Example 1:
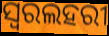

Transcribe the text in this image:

ସ୍ୱରଲହରୀ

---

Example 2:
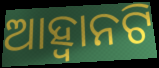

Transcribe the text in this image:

ଆହ୍ଵାନଟି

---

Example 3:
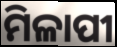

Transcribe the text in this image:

ମିଳାପୀ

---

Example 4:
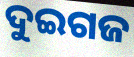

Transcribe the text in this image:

ଦୁଇଗଜ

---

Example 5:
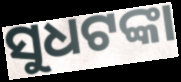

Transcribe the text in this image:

ସୁଧଟଙ୍କା